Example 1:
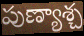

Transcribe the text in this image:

పుణ్యాశ్చ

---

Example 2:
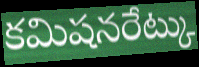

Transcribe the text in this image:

కమిషనరేట్కు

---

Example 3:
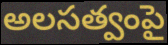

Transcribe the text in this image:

అలసత్వంపై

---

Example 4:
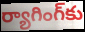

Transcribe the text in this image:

ర్యాగింగ్‌కు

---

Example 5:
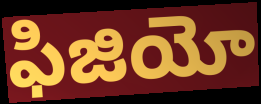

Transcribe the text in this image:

ఫిజియో